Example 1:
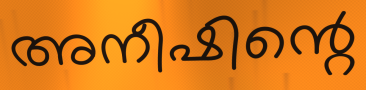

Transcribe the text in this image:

അനീഷിന്റെ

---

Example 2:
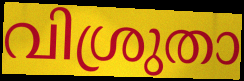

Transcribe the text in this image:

വിശ്രുതാ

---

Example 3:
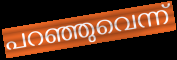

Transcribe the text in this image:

പറഞ്ഞുവെന്ന്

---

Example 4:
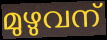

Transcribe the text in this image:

മുഴുവന്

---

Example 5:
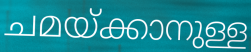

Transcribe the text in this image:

ചമയ്ക്കാനുള്ള